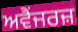
ਅਵੈਂਜਰਜ਼